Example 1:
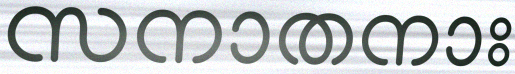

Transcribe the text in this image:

സനാതനാഃ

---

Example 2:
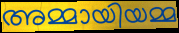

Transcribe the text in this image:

അമ്മായിയമ്മ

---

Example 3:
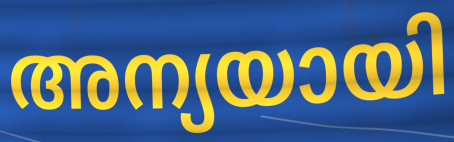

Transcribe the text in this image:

അന്യയായി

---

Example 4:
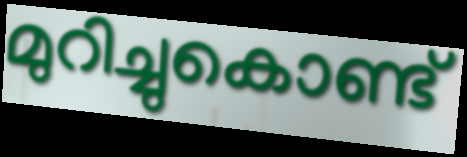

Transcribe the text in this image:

മുറിച്ചുകൊണ്ട്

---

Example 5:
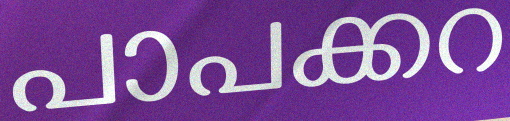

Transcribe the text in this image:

പാപക്കറ